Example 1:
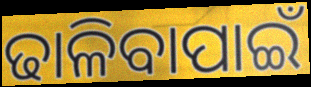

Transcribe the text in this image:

ଢାଳିବାପାଇଁ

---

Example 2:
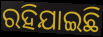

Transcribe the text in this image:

ରହିଯାଇଛି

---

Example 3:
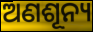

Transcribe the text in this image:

ଅଣଶୂନ୍ୟ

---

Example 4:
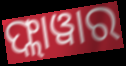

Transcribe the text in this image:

ଫ୍ଲାୱାର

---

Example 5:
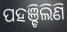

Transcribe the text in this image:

ପହଞ୍ଚିଲିଣି